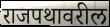
राजपथावरील